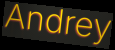
Andrey